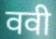
ववी